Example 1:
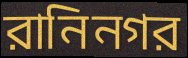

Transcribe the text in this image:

রানিনগর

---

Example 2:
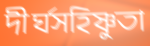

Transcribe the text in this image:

দীর্ঘসহিষ্ণুতা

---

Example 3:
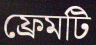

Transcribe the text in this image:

ফ্রেমটি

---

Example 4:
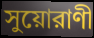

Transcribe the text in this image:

সুয়োরাণী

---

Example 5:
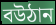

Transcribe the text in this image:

বউঠান